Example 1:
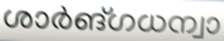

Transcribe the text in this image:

ശാർങ്ഗധന്വാ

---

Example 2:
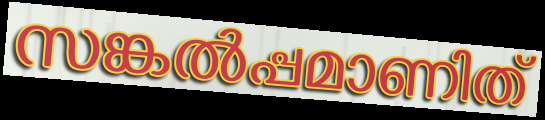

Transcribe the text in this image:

സങ്കൽപ്പമാണിത്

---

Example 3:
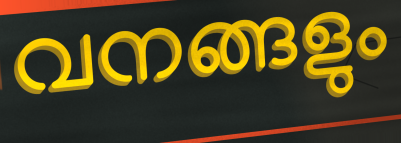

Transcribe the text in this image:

വനങ്ങളും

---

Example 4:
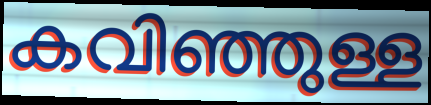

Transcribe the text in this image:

കവിഞ്ഞുള്ള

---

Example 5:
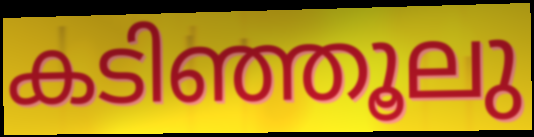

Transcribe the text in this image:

കടിഞ്ഞൂലു